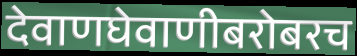
देवाणघेवाणीबरोबरच